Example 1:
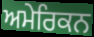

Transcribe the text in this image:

ਅਮੇਰਿਕਨ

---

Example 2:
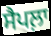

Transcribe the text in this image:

ਸੈਪਲ਼ਾ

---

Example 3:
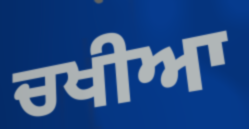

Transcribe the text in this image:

ਚਖੀਆ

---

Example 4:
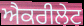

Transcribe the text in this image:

ਐਕਰੀਲੇਟ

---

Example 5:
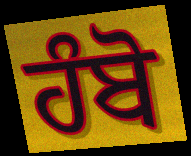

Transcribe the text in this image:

ਹੰਬੋ